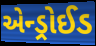
એન્ડ્રોઈડ